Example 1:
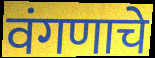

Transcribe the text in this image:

वंगणाचे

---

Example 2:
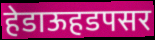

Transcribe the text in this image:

हेडाऊहडपसर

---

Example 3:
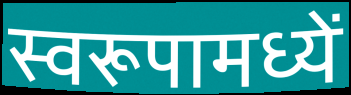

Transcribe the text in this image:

स्वरूपामध्यें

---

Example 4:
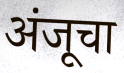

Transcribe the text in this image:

अंजूचा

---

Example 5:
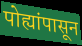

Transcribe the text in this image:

पोह्यांपासून